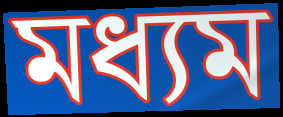
মধ্যম